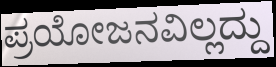
ಪ್ರಯೋಜನವಿಲ್ಲದ್ದು